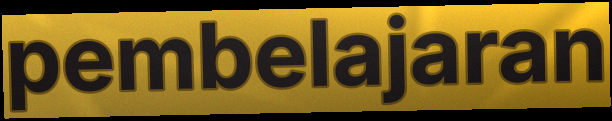
pembelajaran